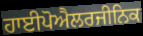
ਹਾਈਪੋਐਲਰਜੀਨਿਕ